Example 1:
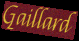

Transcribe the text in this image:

Gaillard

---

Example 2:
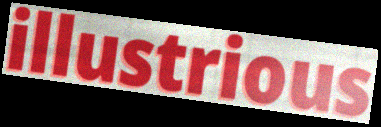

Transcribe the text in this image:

illustrious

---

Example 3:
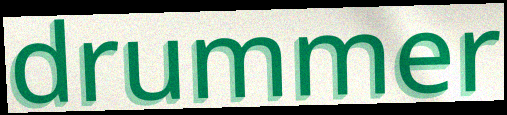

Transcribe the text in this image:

drummer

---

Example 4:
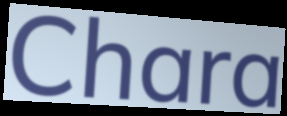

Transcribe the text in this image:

Chara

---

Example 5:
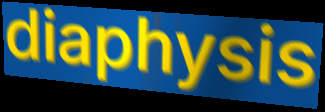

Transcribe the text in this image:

diaphysis